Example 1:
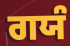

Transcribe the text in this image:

ਗਯੰ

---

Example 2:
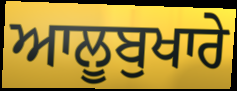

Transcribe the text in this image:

ਆਲੂਬੁਖਾਰੇ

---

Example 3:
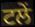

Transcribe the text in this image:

ਟਲੇਂ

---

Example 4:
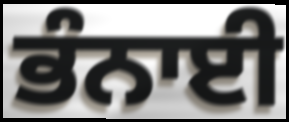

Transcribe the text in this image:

ਭੰਨਾਈ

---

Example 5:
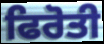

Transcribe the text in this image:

ਫਿਰੋਤੀ